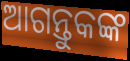
ଆଗନ୍ତୁକଙ୍କ